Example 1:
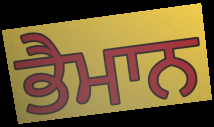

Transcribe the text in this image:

ਭੈਮਾਨ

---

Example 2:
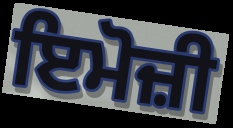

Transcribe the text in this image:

ਇਮੋਜ਼ੀ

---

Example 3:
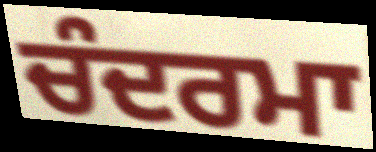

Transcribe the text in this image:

ਚੰਦਰਮਾ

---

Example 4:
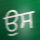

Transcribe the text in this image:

ਉਸ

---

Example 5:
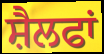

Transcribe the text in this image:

ਸ਼ੈਲਫਾਂ